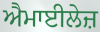
ਐਮਾਈਲੇਜ਼